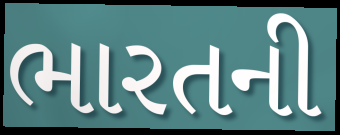
ભારતની